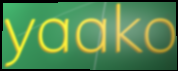
yaako